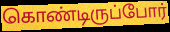
கொண்டிருப்போர்